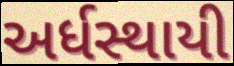
અર્ધસ્થાયી